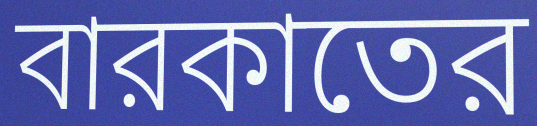
বারকাতের